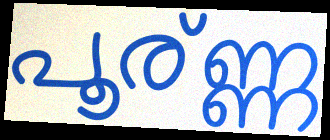
പൂര്ണ്ണ